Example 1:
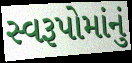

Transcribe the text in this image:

સ્વરૂપોમાંનું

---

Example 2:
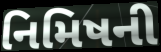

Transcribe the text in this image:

નિમિષની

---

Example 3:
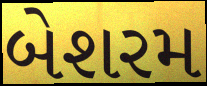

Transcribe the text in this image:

બેશરમ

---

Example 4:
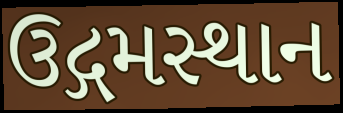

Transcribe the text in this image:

ઉદ્ગમસ્થાન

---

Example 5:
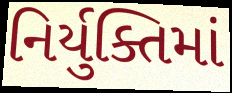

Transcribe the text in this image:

નિર્યુક્તિમાં